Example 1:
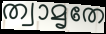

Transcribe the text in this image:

ത്വാമൃതേ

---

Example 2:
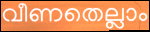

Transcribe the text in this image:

വീണതെല്ലാം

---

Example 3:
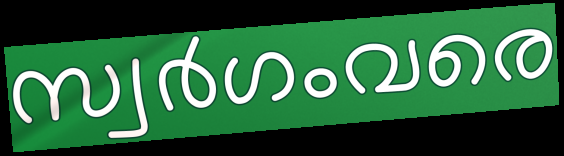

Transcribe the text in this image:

സ്വർഗംവരെ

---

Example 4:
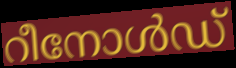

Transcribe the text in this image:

റീനോൾഡ്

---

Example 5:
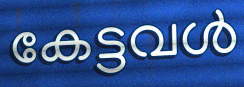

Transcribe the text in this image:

കേട്ടവൾ